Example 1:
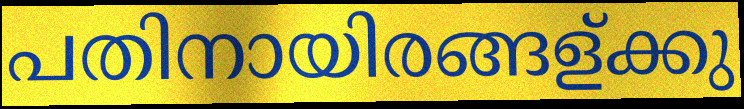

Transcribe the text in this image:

പതിനായിരങ്ങള്ക്കു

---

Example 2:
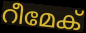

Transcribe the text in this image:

റീമേക്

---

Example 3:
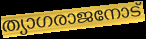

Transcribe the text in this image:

ത്യാഗരാജനോട്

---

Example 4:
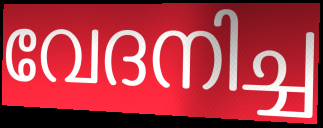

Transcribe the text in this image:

വേദനിച്ച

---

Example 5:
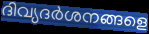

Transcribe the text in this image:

ദിവ്യദർശനങ്ങളെ